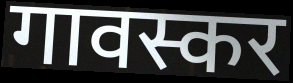
गावस्कर